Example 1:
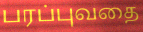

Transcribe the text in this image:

பரப்புவதை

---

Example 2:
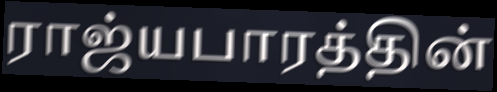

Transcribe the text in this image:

ராஜ்யபாரத்தின்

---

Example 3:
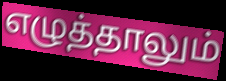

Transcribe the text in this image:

எழுத்தாலும்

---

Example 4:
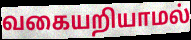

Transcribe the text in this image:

வகையறியாமல்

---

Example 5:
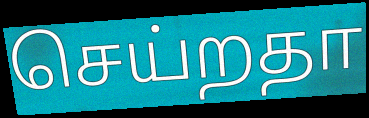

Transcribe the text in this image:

செய்றதா